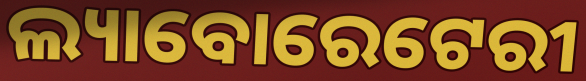
ଲ୍ୟାବୋରେଟେରୀ